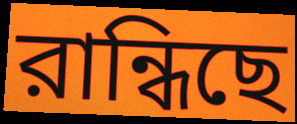
রান্ধিছে